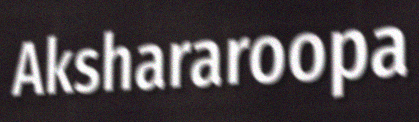
Akshararoopa